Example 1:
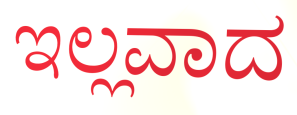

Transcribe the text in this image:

ಇಲ್ಲವಾದ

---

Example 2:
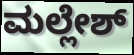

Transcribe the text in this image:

ಮಲ್ಲೇಶ್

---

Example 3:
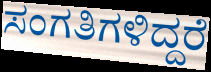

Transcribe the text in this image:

ಸಂಗತಿಗಳಿದ್ದರೆ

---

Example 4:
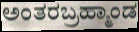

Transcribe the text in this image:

ಅಂತರಬ್ರಹ್ಮಾಂಡ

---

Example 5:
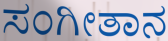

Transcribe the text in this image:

ಸಂಗೀತಾನ